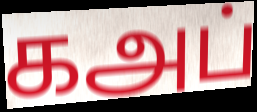
கஅப்